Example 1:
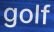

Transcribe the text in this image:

golf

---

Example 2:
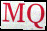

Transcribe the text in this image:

MQ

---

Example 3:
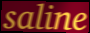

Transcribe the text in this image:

saline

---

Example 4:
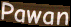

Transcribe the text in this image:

Pawan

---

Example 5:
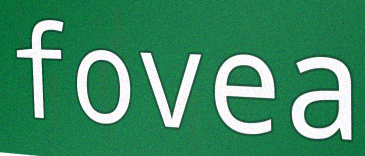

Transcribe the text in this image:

fovea